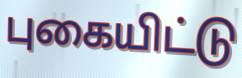
புகையிட்டு